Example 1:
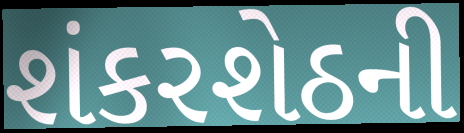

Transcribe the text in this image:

શંકરશેઠની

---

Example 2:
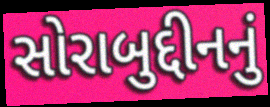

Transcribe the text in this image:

સોરાબુદ્દીનનું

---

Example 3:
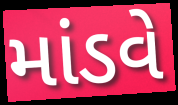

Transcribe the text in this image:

માંડવે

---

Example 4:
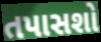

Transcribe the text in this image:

તપાસશો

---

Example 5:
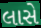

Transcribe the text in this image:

લાસે